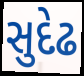
સુદેઢ